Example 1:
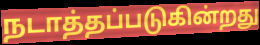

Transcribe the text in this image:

நடாத்தப்படுகின்றது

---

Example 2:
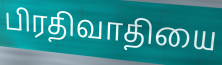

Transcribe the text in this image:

பிரதிவாதியை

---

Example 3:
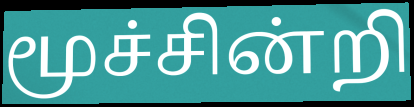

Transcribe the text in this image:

மூச்சின்றி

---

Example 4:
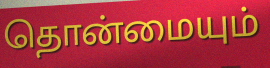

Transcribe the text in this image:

தொன்மையும்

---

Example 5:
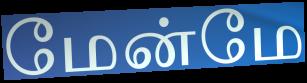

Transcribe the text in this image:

மேன்மே